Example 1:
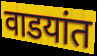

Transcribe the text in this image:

वाडयांत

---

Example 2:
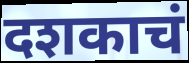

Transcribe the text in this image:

दशकाचं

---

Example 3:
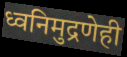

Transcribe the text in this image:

ध्वनिमुद्रणेही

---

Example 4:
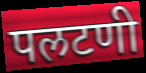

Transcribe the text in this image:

पलटणी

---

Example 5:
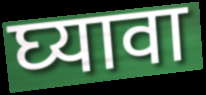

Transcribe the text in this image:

घ्यावा